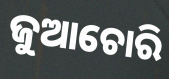
ଜୁଆଚୋରି